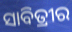
ସାବିତ୍ରୀର